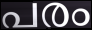
പരം